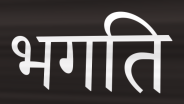
भगति